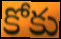
కోకు